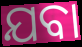
ଯବା